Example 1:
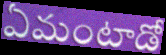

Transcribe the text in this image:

ఏమంటాడో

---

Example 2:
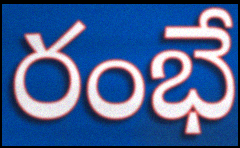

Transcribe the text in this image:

రంభే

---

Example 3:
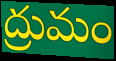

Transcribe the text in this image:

ద్రుమం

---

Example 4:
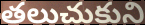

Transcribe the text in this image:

తలుచుకుని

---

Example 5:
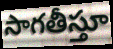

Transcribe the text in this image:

సాగతీస్తూ